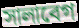
সালাবেগ